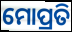
ମୋପ୍ରତି